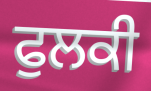
ਫੁਲਕੀ